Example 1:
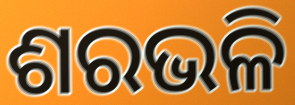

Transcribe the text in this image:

ଶରଭଳି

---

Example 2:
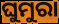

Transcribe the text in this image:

ଘୁମୁରା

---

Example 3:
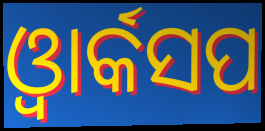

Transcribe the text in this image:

ଓ୍ୱାର୍କସପ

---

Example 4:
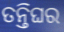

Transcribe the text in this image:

ତନ୍ତିଘର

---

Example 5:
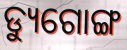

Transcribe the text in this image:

ଡ୍ୟୁଗୋଙ୍ଗ